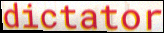
dictator